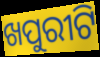
ଖପୁରୀଟି